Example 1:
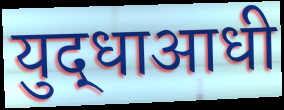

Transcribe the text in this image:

युद्धाआधी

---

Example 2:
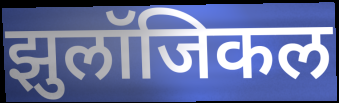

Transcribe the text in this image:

झुलॉजिकल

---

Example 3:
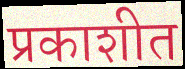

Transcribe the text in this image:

प्रकाशीत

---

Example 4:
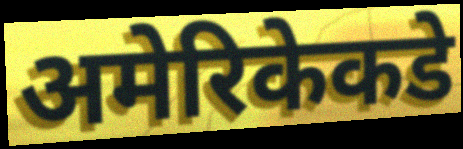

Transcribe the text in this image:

अमेरिकेकडे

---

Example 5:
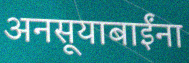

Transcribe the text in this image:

अनसूयाबाईंना